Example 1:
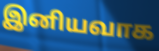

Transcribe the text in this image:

இனியவாக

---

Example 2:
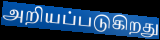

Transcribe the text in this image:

அறியப்படுகிறது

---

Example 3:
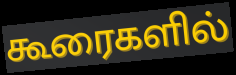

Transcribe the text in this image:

கூரைகளில்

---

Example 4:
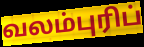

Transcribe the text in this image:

வலம்புரிப்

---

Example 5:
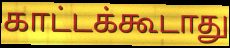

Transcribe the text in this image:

காட்டக்கூடாது